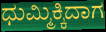
ಧುಮ್ಮಿಕ್ಕಿದಾಗ